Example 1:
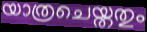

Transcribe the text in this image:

യാത്രചെയ്തതും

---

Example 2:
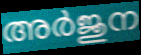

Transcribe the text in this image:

അർജുന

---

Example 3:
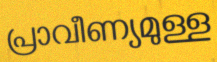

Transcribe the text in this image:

പ്രാവീണ്യമുള്ള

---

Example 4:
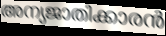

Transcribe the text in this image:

അന്യജാതിക്കാരൻ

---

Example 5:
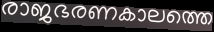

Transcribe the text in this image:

രാജഭരണകാലത്തെ